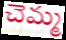
చెమ్మ